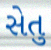
સેતુ